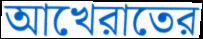
আখেরাতের